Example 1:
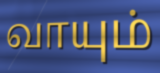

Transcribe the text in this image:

வாயும்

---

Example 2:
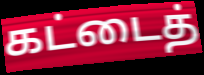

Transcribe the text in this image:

கட்டைத்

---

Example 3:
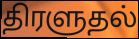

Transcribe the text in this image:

திரளுதல்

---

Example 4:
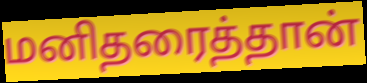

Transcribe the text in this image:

மனிதரைத்தான்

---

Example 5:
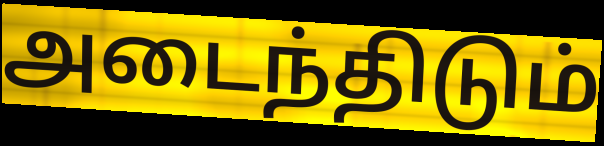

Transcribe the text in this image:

அடைந்திடும்